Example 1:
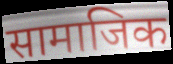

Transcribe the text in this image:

सामाजिक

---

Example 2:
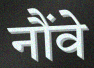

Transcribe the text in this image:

नौंवे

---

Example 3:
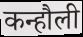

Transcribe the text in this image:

कन्हौली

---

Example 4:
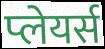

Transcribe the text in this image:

प्‍लेयर्स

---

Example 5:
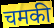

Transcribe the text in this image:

चमकी